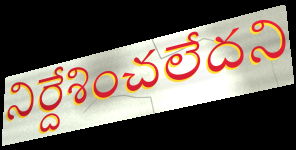
నిర్దేశించలేదని